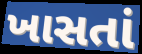
ખાસતાં